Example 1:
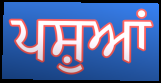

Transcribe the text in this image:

ਪਸ਼ੁਆਂ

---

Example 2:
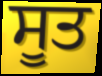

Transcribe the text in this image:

ਸੂਤ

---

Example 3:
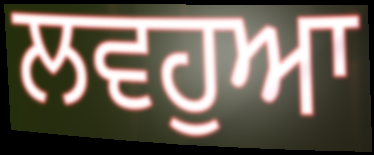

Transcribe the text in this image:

ਲਵਹੁਆ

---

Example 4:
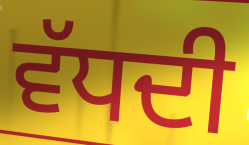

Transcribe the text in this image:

ਵੱਧਦੀ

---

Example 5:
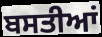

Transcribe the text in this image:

ਬਸਤੀਆਂ